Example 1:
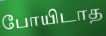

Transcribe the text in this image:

போயிடாத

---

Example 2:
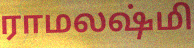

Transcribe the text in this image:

ராமலஷ்மி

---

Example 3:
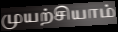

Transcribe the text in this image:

முயற்சியாம்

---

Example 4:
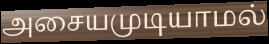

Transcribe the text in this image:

அசையமுடியாமல்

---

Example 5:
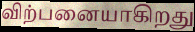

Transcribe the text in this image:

விற்பனையாகிறது